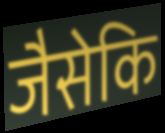
जैसेकि